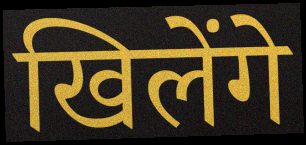
खिलेंगे